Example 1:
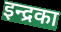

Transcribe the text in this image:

इन्द्रका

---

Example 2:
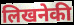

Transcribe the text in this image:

लिखनेकी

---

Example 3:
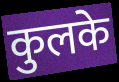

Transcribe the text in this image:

कुलके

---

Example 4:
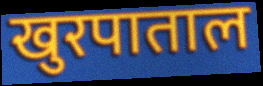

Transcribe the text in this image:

खुरपाताल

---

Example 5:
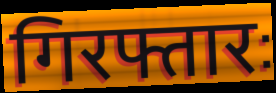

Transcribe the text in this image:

गिरफ्तारः